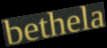
bethela